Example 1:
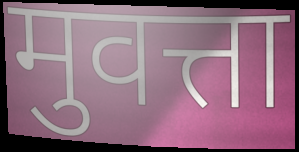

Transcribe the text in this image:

मुवत्ता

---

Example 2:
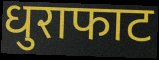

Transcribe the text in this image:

धुराफाट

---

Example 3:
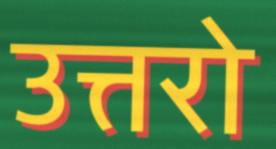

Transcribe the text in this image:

उत्तरो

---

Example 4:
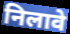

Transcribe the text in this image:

निलावे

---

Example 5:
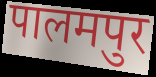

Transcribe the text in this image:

पालमपुर